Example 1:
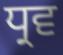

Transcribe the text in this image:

ਧ੍ਰਵ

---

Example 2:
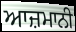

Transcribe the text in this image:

ਆਜ਼ਮਾਨੀ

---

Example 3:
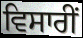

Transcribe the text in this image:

ਵਿਸਾਰੀਂ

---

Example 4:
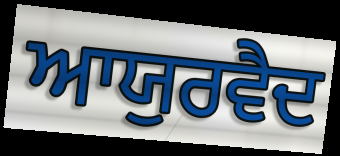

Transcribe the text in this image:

ਆਯੁਰਵੈਦ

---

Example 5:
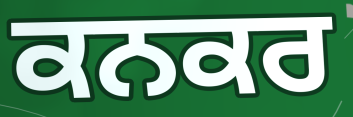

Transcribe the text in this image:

ਕਨਕਰ